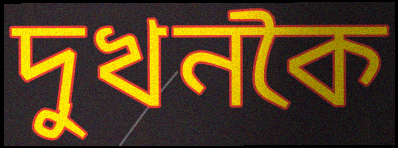
দুখনকৈ